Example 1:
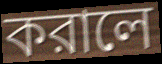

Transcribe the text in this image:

করালে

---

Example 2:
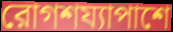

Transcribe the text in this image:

রোগশয্যাপাশে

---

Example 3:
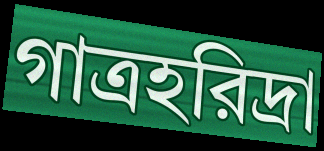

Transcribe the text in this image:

গাত্রহরিদ্রা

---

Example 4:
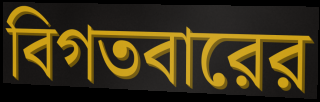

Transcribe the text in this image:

বিগতবারের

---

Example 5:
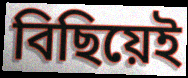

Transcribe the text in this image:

বিছিয়েই